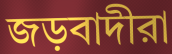
জড়বাদীরা